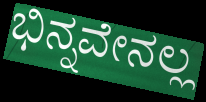
ಭಿನ್ನವೇನಲ್ಲ